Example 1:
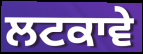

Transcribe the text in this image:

ਲਟਕਾਵੇ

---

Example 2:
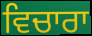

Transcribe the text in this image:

ਵਿਚਾਰਾ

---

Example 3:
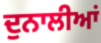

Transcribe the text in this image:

ਦੁਨਾਲੀਆਂ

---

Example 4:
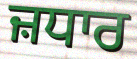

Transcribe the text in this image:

ਜ਼ਧਾਰ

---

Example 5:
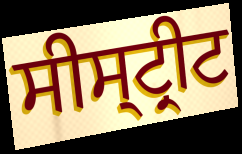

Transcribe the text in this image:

ਸੀਸ੍ਟ੍ਰੀਟ